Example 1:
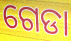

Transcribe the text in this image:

ଗେଡା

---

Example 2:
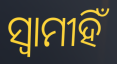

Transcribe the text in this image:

ସ୍ଵାମୀହିଁ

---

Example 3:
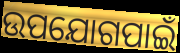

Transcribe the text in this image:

ଉପଯୋଗପାଇଁ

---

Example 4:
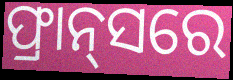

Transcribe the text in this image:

ଫ୍ରାନ୍‌ସରେ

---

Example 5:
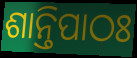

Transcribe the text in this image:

ଶାନ୍ତିପାଠଃ